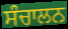
ਸੰਚਾਲਨ